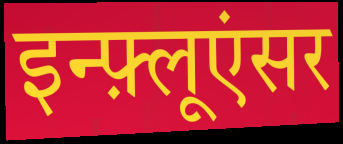
इन्फ़्लूएंसर